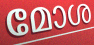
മോശ